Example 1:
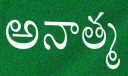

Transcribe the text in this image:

అనాత్మ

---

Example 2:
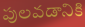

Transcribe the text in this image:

పులవడానికి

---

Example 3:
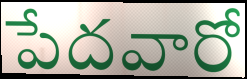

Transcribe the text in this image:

పేదవారో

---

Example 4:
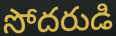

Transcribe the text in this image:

సోదరుడి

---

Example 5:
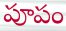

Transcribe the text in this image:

పూపం